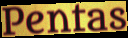
Pentas